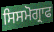
ਸਿਸਮੋਗ੍ਰਾਫ